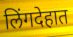
लिंगदेहात